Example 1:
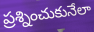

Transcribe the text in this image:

ప్రశ్నించుకునేలా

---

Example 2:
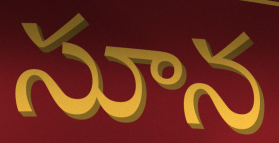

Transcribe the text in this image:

సూన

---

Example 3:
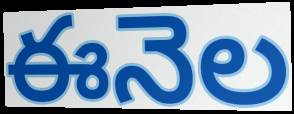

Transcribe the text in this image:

ఈనెల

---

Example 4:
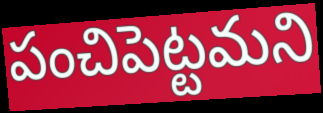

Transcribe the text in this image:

పంచిపెట్టమని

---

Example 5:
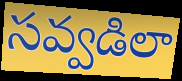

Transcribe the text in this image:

సవ్వడిలా